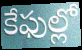
కేఫుల్లో